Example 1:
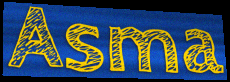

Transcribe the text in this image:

Asma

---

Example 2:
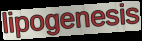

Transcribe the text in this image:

lipogenesis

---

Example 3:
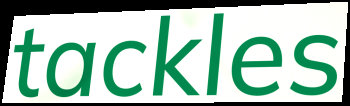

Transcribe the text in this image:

tackles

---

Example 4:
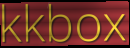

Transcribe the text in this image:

kkbox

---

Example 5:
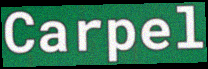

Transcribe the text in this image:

Carpel